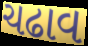
ચઢાવ